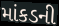
માંકડની